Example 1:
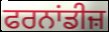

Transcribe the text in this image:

ਫਰਨਾਂਡੀਜ਼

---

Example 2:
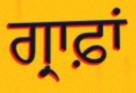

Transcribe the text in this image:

ਗ੍ਰਾਫ਼ਾਂ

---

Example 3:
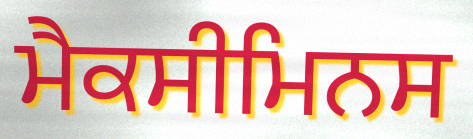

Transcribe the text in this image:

ਮੈਕਸੀਮਿਨਸ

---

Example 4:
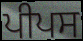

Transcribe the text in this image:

ਪੀਪਸ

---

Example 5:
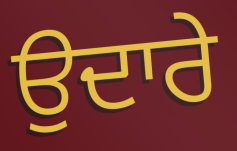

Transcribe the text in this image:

ਉਦਾਰੇ